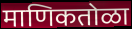
माणिकतोळा